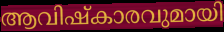
ആവിഷ്കാരവുമായി